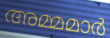
അമ്മമാർ